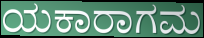
ಯಕಾರಾಗಮ